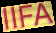
IIFA